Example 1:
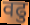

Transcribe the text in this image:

वढु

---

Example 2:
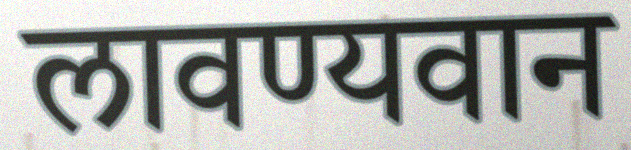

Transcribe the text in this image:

लावण्यवान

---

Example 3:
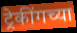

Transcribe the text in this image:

ट्रेकींगच्या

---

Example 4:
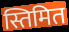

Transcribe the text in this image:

स्तिमित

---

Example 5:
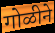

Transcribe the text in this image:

गोळीने